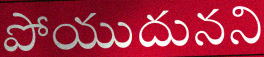
పోయుదునని